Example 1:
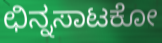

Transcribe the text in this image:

ಛಿನ್ನಸಾಟಕೋ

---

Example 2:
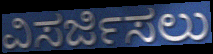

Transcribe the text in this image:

ವಿಸರ್ಜಿಸಲು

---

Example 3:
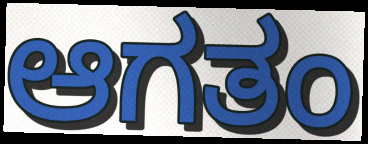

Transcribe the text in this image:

ಆಗತಂ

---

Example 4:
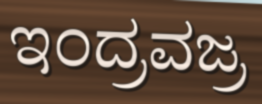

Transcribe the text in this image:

ಇಂದ್ರವಜ್ರ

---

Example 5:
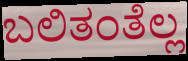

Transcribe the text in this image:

ಬಲಿತಂತೆಲ್ಲ